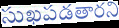
సుఖపడతారని